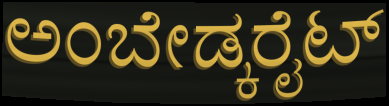
ಅಂಬೇಡ್ಕರೈಟ್